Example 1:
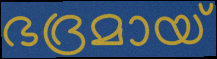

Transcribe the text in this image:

ഭദ്രമായ്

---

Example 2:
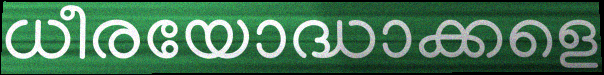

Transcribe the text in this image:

ധീരയോദ്ധാക്കളെ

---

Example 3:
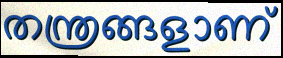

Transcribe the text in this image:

തന്ത്രങ്ങളാണ്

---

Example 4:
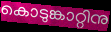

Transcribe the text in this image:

കൊടുങ്കാറ്റിനു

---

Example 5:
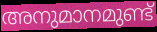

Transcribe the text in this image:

അനുമാനമുണ്ട്